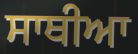
ਸਾਥੀਆ